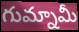
గుమ్నామీ